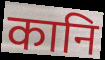
कानि